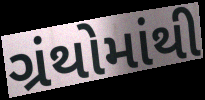
ગ્રંથોમાંથી